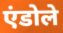
एंडोले